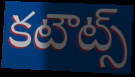
కటౌట్స్